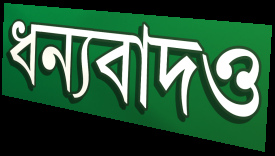
ধন্যবাদও